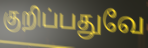
குறிப்பதுவே